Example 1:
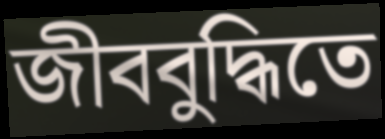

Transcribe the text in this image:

জীববুদ্ধিতে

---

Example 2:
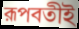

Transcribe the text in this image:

রূপবতীই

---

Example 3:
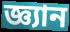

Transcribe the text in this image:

জ্ঞ্যান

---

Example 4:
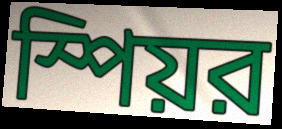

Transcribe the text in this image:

স্পিয়র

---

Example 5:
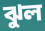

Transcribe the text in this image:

ঝুল